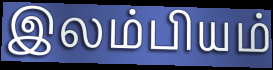
இலம்பியம்